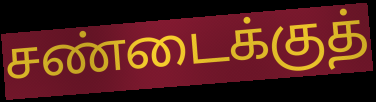
சண்டைக்குத்